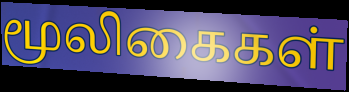
மூலிகைகள்